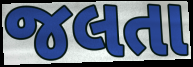
જલતા